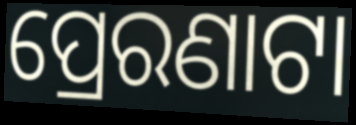
ପ୍ରେରଣାଟା